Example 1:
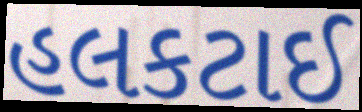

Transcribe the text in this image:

હલકટાઈ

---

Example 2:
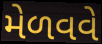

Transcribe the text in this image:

મેળવવે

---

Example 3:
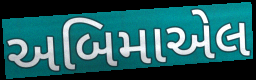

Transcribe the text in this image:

અબિમાએલ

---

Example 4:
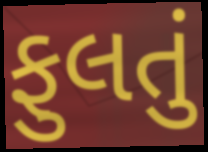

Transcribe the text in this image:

ફુલતું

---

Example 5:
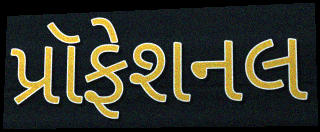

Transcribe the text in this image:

પ્રૉફેશનલ